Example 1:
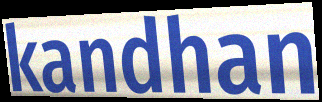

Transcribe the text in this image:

kandhan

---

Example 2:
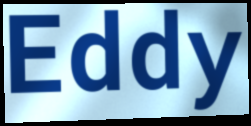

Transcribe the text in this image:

Eddy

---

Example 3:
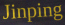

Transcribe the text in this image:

Jinping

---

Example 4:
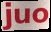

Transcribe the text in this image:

juo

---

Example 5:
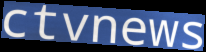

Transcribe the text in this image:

ctvnews